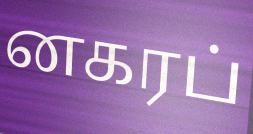
னகரப்